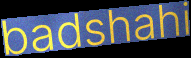
badshahi